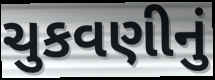
ચુકવણીનું